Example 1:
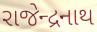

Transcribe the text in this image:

રાજેન્દ્રનાથ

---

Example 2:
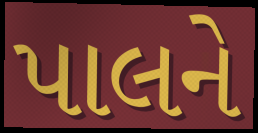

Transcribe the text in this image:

પાલને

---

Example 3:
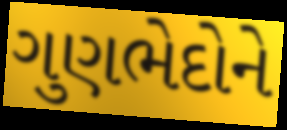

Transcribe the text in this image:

ગુણભેદોને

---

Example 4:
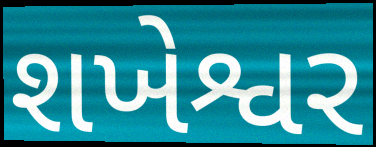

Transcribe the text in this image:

શખેશ્વર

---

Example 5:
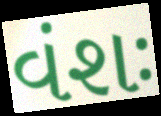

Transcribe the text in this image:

વંશઃ